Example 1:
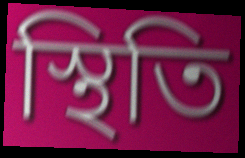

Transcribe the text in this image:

স্থিতি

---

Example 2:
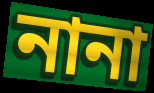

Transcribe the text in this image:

নানা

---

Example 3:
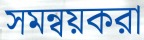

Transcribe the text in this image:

সমন্বয়করা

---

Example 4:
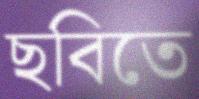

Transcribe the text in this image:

ছবিতে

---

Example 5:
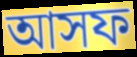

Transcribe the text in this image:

আসফ